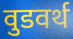
वुडवर्थ